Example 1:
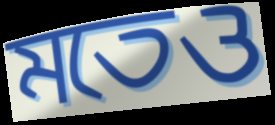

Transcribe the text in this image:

মতেও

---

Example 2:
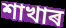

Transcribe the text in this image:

শাখাৰ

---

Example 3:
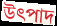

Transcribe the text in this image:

উৎপাদ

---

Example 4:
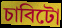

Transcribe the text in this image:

চাবিটো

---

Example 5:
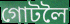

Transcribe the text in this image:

গোটলৈ